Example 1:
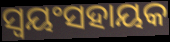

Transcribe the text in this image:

ସ୍ଵୟଂସହାୟକ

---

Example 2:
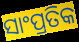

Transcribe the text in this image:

ସାଂପ୍ରତିକ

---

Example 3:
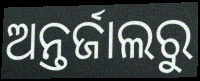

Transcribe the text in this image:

ଅନ୍ତର୍ଜାଲରୁ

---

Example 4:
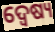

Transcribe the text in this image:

ଦ୍ୱେଷ୍ୟ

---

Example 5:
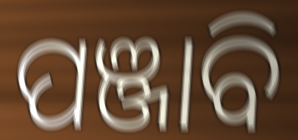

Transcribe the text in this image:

ପଞ୍ଜାବି